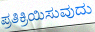
ಪ್ರತಿಕ್ರಿಯಿಸುವುದು